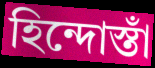
হিন্দোস্তাঁ